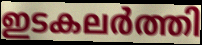
ഇടകലർത്തി